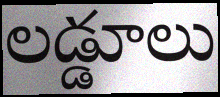
లడ్డూలు